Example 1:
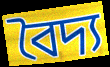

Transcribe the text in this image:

বৈদ্য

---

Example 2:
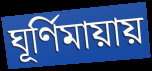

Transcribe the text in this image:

ঘূর্ণিমায়ায়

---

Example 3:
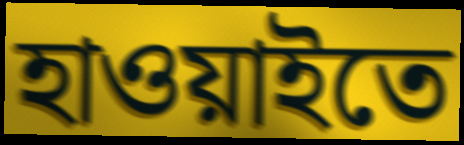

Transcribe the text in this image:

হাওয়াইতে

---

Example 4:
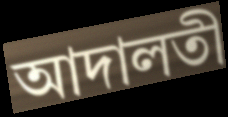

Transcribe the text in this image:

আদালতী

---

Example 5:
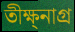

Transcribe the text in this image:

তীক্ষ্নাগ্র